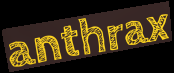
anthrax